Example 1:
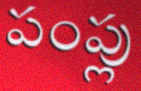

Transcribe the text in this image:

పంప్లు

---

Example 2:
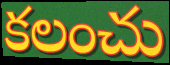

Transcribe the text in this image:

కలంచు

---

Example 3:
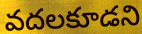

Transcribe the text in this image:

వదలకూడని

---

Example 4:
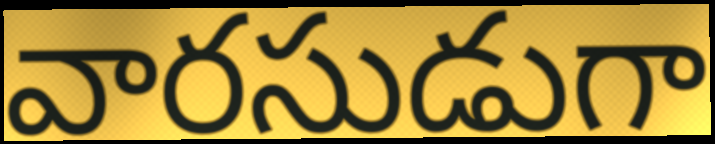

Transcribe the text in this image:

వారసుడుగా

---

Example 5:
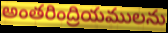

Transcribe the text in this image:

అంతరింద్రియములను